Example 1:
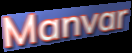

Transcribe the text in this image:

Manvar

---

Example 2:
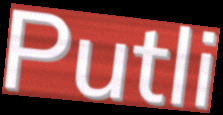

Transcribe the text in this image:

Putli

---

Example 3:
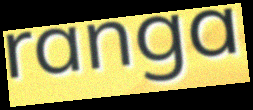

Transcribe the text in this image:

ranga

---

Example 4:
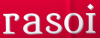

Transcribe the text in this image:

rasoi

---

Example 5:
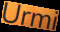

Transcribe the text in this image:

Urmi